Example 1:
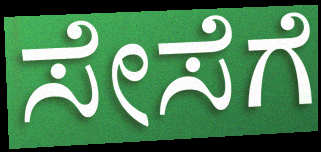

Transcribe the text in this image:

ಸೇಸೆಗೆ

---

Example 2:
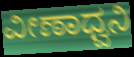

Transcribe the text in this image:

ವೀಣಾಧ್ವನಿ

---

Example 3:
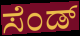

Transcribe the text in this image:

ಸೆಂಡ್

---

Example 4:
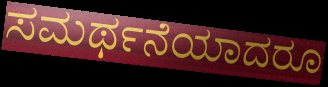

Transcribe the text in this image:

ಸಮರ್ಥನೆಯಾದರೂ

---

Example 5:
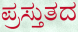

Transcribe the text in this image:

ಪ್ರಸ್ತುತದ